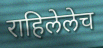
राहिलेलेच